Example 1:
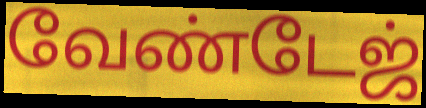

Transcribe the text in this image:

வேண்டேஜ்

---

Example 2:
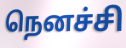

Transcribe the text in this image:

நெனச்சி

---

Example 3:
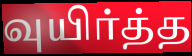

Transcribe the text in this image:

வுயிர்த்த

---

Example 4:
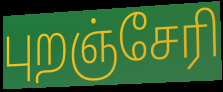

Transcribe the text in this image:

புறஞ்சேரி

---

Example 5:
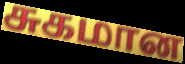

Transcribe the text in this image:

சுகமான